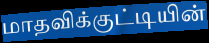
மாதவிக்குட்டியின்